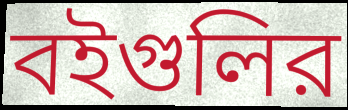
বইগুলির